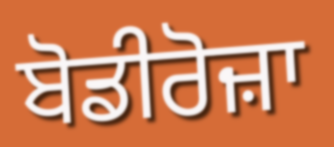
ਬੋਡੀਰੋਜ਼ਾ